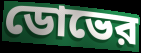
ডোভের